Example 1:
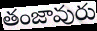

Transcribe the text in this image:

తంజావురు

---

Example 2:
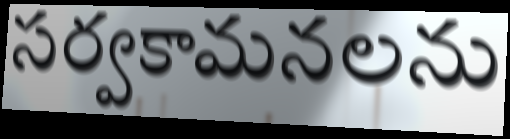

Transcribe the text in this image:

సర్వకామనలను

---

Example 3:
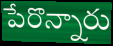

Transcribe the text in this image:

పేరొన్నారు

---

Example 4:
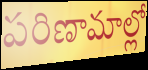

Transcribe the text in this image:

పరిణామాల్లో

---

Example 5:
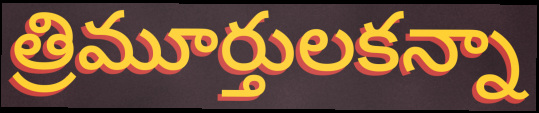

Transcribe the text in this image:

త్రిమూర్తులకన్నా